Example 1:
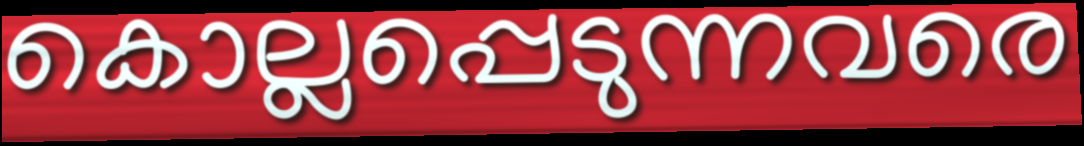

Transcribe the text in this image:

കൊല്ലപ്പെടുന്നവരെ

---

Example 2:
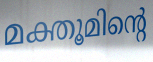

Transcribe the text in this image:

മക്തൂമിന്റെ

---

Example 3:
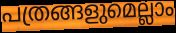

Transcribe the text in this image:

പത്രങ്ങളുമെല്ലാം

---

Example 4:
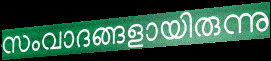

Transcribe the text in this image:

സംവാദങ്ങളായിരുന്നു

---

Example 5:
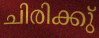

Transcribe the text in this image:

ചിരിക്കു്